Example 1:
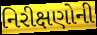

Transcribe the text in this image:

નિરીક્ષણોની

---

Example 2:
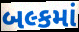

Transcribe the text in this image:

બલ્કમાં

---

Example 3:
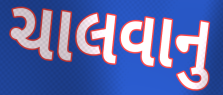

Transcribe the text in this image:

ચાલવાનુ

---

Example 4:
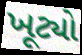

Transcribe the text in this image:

ખૂટ્યો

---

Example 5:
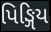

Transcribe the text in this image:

પિઙ્ગિય